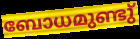
ബോധമുണ്ടു്